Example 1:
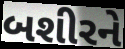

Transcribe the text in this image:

બશીરને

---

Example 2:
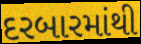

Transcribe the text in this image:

દરબારમાંથી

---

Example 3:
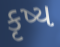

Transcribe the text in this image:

કૃષ્ય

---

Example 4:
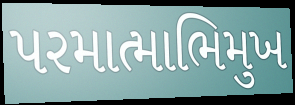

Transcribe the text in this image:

પરમાત્માભિમુખ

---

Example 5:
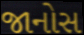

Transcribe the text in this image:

જાનોસ